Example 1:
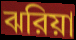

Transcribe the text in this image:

ঝরিয়া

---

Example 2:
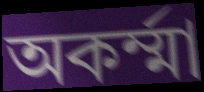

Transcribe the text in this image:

অকর্ম্মা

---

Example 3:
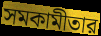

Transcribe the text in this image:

সমকামীতার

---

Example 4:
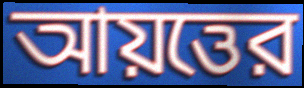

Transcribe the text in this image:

আয়ত্তের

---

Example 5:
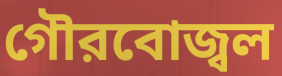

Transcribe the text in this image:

গৌরবোজ্বল